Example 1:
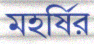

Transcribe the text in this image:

মহর্ষির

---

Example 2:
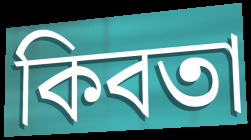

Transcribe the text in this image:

কিবতা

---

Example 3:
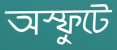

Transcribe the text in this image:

অস্ফুটে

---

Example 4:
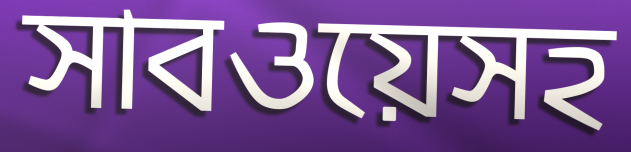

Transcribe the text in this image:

সাবওয়েসহ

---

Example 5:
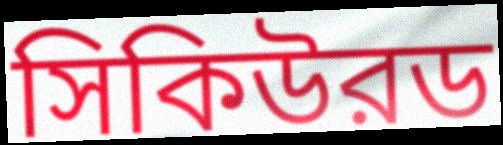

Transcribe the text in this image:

সিকিউরড